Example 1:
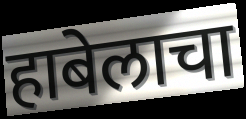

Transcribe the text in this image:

हाबेलाचा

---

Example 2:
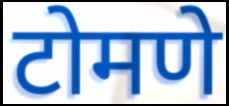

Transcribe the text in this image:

टोमणे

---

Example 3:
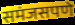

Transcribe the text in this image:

समंजसपणे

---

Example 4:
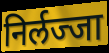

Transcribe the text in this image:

निर्लज्जा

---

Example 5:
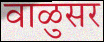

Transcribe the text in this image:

वाळुसर